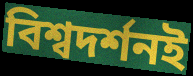
বিশ্বদর্শনই